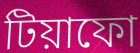
টিয়াফো